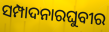
ସମ୍ପାଦନାରଘୁବୀର